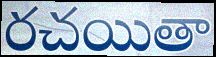
రచయితా